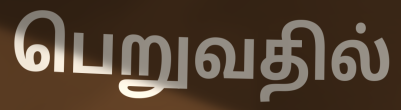
பெறுவதில்